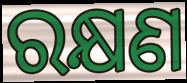
ରକ୍ଷଣ